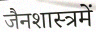
जैनशास्त्रमें